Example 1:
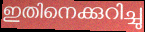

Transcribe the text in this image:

ഇതിനെക്കുറിച്ചു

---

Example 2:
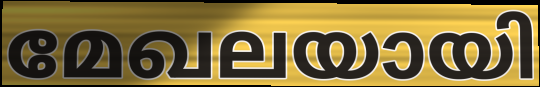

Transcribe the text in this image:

മേഖലയായി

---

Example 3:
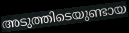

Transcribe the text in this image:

അടുത്തിടെയുണ്ടായ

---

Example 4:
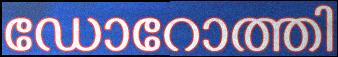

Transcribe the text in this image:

ഡോറോത്തി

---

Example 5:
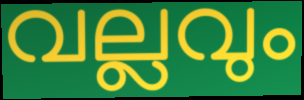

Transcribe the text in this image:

വല്ലവും